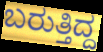
ಬರುತ್ತಿದ್ದ